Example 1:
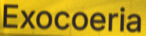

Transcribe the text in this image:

Exocoeria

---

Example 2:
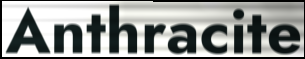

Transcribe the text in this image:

Anthracite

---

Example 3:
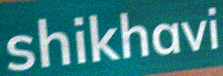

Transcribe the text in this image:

shikhavi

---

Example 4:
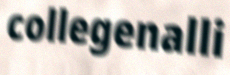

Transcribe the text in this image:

collegenalli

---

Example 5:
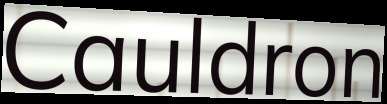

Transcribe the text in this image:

Cauldron